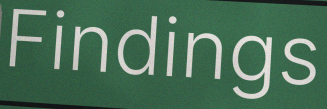
Findings